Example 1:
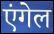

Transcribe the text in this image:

एंगेल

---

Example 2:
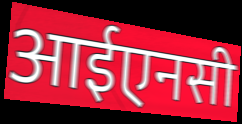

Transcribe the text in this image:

आईएनसी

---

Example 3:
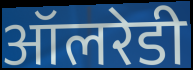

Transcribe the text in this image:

ऑलरेडी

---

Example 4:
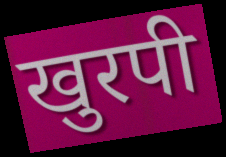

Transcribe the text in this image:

खुरपी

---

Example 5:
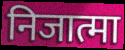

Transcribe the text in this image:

निजात्मा